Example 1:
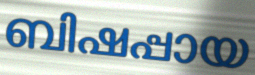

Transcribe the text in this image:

ബിഷപ്പായ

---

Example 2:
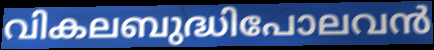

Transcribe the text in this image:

വികലബുദ്ധിപോലവൻ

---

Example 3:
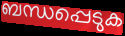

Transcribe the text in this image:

ബന്ധപ്പെടുക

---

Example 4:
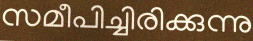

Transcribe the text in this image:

സമീപിച്ചിരിക്കുന്നു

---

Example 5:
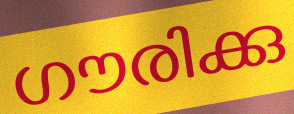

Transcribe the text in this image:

ഗൗരിക്കു